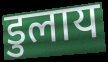
डुलाय